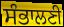
ਸੰਭਾਲਣੀ